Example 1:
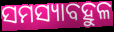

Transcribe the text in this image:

ସମସ୍ୟାବହୁଳ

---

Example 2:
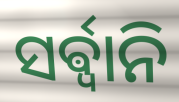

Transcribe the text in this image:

ସର୍ଵ୍ଵାନି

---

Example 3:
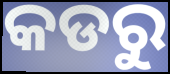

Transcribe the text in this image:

କଡରୁ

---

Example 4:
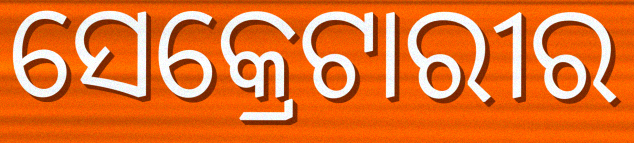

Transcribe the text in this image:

ସେକ୍ରେଟାରୀର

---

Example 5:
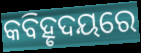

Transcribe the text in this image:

କବିହୃଦୟରେ